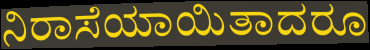
ನಿರಾಸೆಯಾಯಿತಾದರೂ